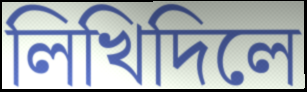
লিখিদিলে